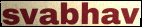
svabhav